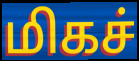
மிகச்